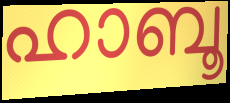
ഹാബൂ